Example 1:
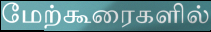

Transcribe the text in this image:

மேற்கூரைகளில்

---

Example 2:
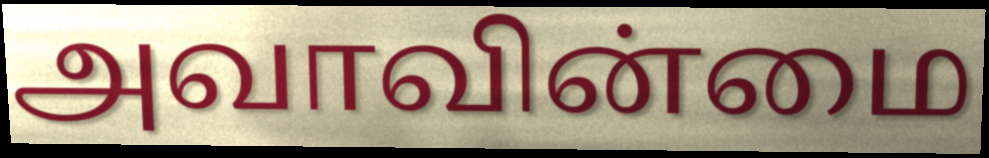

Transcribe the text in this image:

அவாவின்மை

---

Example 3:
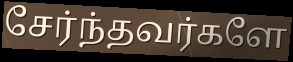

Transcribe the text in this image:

சேர்ந்தவர்களே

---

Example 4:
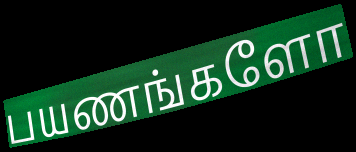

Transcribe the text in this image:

பயணங்களோ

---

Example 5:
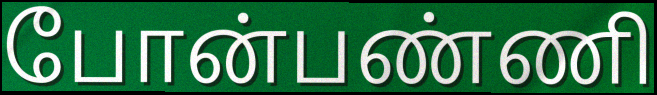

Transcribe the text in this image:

போன்பண்ணி